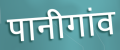
पानीगांव